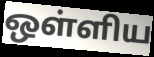
ஒள்ளிய